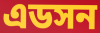
এডসন